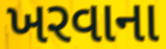
ખરવાના